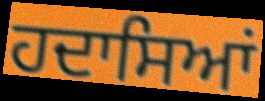
ਹਦਾਸਿਆਂ